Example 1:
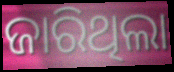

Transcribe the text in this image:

ଜାରିଥିଲା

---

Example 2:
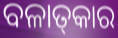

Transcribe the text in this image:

ବଳାତ୍‌କାର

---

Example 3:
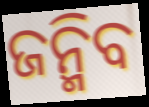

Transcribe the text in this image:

ଜନ୍ମିବ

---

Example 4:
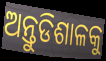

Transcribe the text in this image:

ଅନ୍ତୁଡିଶାଳକୁ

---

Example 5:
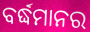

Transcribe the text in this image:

ବର୍ଦ୍ଧମାନର